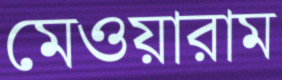
মেওয়ারাম